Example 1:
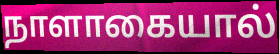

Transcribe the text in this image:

நாளாகையால்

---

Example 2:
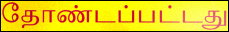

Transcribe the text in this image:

தோண்டப்பட்டது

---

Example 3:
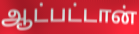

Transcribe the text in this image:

ஆட்பட்டான்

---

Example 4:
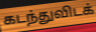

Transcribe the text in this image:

கடந்துவிடக்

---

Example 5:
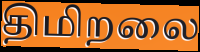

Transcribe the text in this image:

திமிறலை